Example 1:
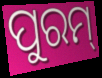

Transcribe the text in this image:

ପୁରମ୍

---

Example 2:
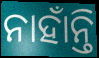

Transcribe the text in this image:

ନାହାଁନ୍ତି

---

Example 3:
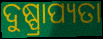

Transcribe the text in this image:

ଦୁଷ୍ପ୍ରାପ୍ୟତା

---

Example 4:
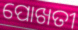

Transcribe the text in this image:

ପୋଖତୀ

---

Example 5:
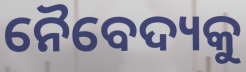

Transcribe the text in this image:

ନୈବେଦ୍ୟକୁ